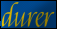
durer